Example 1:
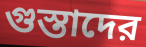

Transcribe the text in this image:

গুস্তাদের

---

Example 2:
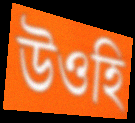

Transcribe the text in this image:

উওহি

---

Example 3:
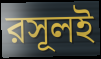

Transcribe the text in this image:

রসূলই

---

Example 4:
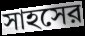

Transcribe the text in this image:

সাহসের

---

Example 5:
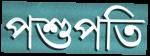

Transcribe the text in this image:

পশুপতি